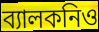
ব্যালকনিও